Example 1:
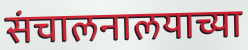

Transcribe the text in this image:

संचालनालयाच्या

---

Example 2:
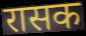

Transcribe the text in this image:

रासक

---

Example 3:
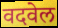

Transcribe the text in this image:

वदवेल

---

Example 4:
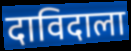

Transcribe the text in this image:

दाविदाला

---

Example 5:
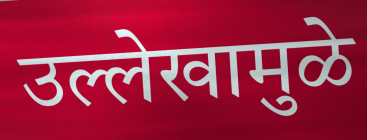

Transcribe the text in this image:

उल्लेखामुळे